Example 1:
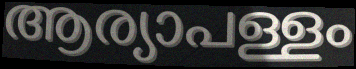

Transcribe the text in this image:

ആര്യാപള്ളം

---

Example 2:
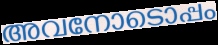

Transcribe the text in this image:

അവനോടൊപ്പം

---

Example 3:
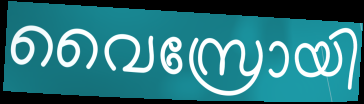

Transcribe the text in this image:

വൈസ്രോയി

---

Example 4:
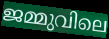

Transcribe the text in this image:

ജമ്മുവിലെ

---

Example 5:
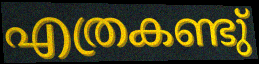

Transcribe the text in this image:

എത്രകണ്ടു്